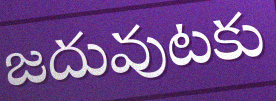
జదువుటకు